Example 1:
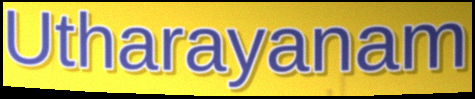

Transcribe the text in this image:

Utharayanam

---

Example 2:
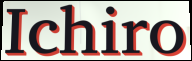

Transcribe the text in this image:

Ichiro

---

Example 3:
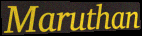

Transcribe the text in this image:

Maruthan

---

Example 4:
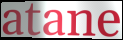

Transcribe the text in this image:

atane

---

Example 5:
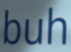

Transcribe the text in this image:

buh